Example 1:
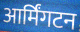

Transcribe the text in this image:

आर्मिंगटन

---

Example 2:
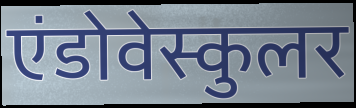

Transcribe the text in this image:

एंडोवेस्कुलर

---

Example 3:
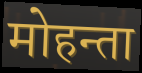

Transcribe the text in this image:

मोहन्ता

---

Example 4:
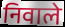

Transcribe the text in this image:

निवाले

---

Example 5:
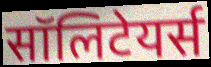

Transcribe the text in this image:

सॉलिटेयर्स